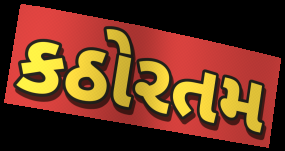
કઠોરતમ